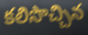
కలిసొచ్చిన